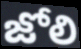
జోలి